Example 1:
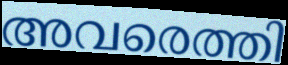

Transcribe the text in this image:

അവരെത്തി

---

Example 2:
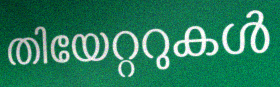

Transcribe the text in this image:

തിയേറ്ററുകൾ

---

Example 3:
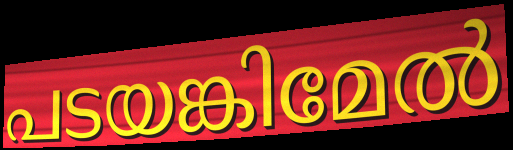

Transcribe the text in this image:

പടയങ്കിമേൽ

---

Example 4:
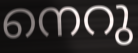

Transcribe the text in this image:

നെറു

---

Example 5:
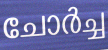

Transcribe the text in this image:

ചോർച്ച